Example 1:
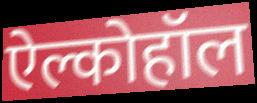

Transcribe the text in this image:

ऐल्कोहॉल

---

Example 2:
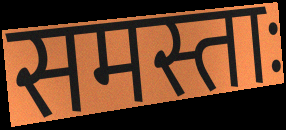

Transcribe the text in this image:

समस्ताः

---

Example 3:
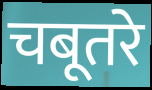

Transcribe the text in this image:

चबूतरे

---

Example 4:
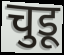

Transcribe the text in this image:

चुडू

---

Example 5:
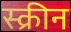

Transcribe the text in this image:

स्क्रीन